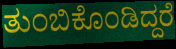
ತುಂಬಿಕೊಂಡಿದ್ದರೆ